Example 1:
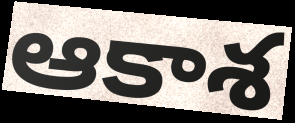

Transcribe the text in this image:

ఆకాశ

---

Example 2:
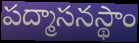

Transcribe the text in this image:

పద్మాసనస్థాం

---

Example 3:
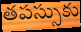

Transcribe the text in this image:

తపస్సుకు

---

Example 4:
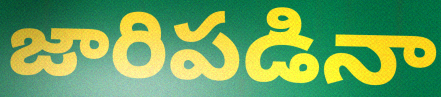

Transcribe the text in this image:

జారిపడినా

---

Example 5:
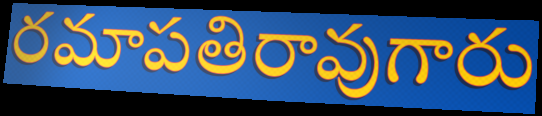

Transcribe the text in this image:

రమాపతిరావుగారు